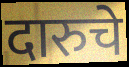
दारुचे